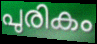
പുരികം